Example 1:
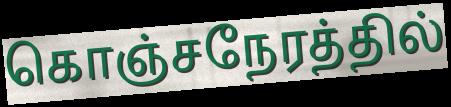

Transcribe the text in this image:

கொஞ்சநேரத்தில்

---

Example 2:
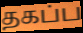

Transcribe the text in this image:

தகப்ப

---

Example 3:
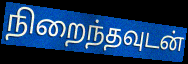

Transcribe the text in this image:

நிறைந்தவுடன்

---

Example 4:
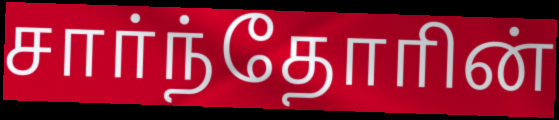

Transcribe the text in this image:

சார்ந்தோரின்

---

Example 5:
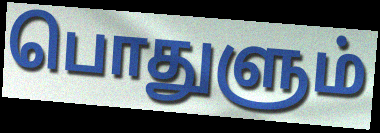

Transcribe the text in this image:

பொதுளும்